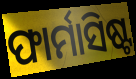
ଫାର୍ମାସିଷ୍ଟ